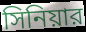
সিনিয়ার